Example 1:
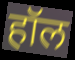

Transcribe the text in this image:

हॉल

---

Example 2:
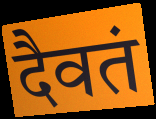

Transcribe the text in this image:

दैवतं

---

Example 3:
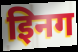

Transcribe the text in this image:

इिनग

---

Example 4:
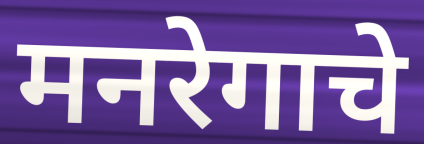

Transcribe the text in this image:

मनरेगाचे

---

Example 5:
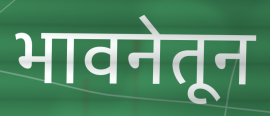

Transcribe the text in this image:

भावनेतून